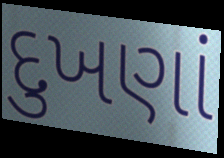
દુખણાં